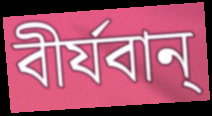
বীর্যবান্